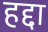
हद्दा